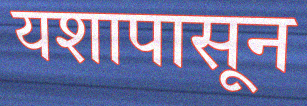
यशापासून